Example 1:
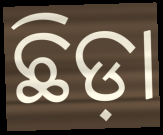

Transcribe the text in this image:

ଛିଡ଼ା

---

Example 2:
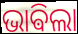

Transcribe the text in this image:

ଭାଵିଲା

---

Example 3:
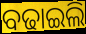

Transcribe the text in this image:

ବଢାଇଲି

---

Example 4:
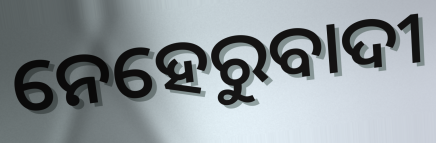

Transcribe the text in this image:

ନେହେରୁବାଦୀ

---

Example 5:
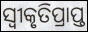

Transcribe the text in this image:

ସ୍ୱୀକୃତିପ୍ରାପ୍ତ